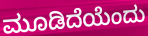
ಮೂಡಿದೆಯೆಂದು